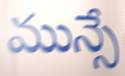
మున్సే